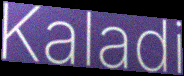
Kaladi